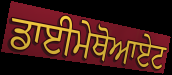
ਡਾਈਮੇਥੋਆਏਟ